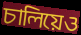
চালিয়েও